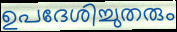
ഉപദേശിച്ചുതരും